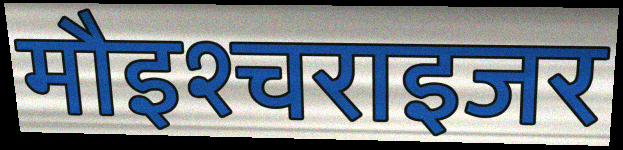
मौइश्चराइजर